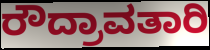
ರೌದ್ರಾವತಾರಿ